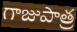
గాజుపాత్ర